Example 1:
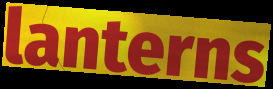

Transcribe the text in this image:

lanterns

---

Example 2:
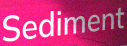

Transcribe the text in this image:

Sediment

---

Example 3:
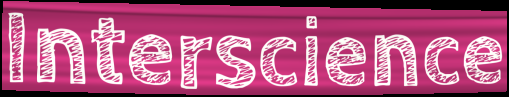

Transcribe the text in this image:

Interscience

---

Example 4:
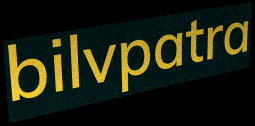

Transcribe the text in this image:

bilvpatra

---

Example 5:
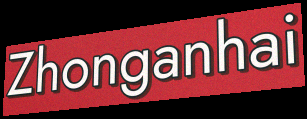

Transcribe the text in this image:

Zhonganhai